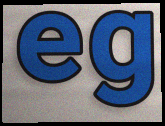
eg